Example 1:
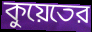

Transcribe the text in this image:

কুয়েতের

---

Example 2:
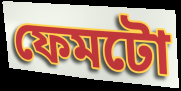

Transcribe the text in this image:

ফেমটো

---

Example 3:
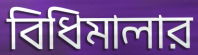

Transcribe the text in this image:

বিধিমালার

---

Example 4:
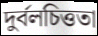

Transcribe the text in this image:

দুর্বলচিত্ততা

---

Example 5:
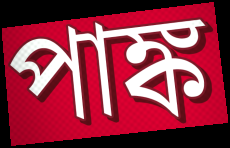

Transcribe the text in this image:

পাঙ্ক